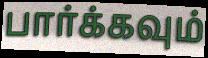
பார்க்கவும்